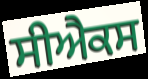
ਸੀਐਕਸ